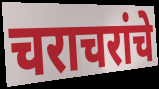
चराचरांचे